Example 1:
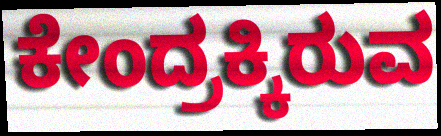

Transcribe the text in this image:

ಕೇಂದ್ರಕ್ಕಿರುವ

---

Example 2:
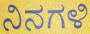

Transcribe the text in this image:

ನಿನಗಳಿ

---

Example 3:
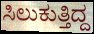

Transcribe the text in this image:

ಸಿಲುಕುತ್ತಿದ್ದ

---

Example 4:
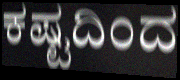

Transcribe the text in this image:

ಕಷ್ಟದಿಂದ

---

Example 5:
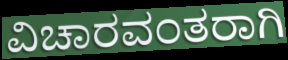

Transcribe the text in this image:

ವಿಚಾರವಂತರಾಗಿ